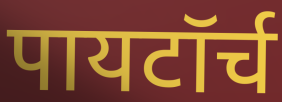
पायटॉर्च